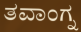
ತವಾಂಗ್ನ